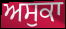
ਅਸੁਕਾ